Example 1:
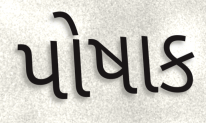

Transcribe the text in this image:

પોષાક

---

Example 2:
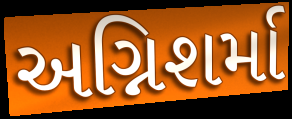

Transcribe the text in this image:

અગ્નિશર્મા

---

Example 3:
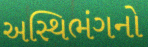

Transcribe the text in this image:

અસ્થિભંગનો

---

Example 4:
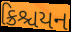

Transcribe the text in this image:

ક્રિશ્ચયન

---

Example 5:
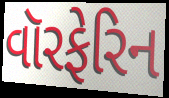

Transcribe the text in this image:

વૉરફેરિન